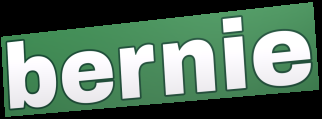
bernie